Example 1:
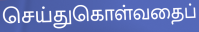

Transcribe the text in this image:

செய்துகொள்வதைப்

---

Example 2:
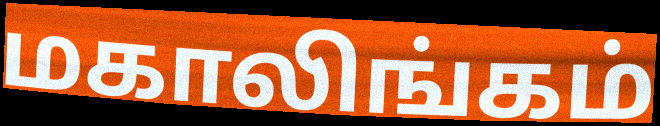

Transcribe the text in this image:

மகாலிங்கம்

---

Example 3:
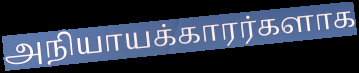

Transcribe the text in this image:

அநியாயக்காரர்களாக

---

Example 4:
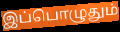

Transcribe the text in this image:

இப்பொழுதும்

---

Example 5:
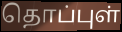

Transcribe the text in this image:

தொப்புள்